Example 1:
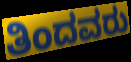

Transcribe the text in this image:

ತಿಂದವರು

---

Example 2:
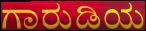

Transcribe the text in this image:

ಗಾರುಡಿಯ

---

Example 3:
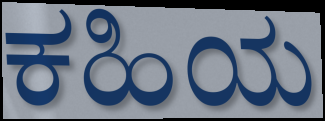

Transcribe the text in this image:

ಕಹಿಯ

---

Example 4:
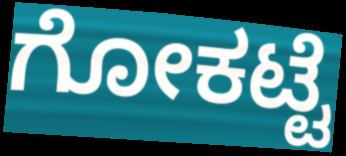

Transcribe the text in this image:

ಗೋಕಟ್ಟೆ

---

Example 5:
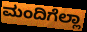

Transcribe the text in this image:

ಮಂದಿಗೆಲ್ಲಾ